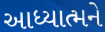
આધ્યાત્મને